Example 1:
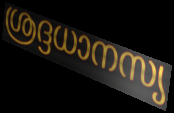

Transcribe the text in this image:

ശ്രദ്ദധാനസ്യ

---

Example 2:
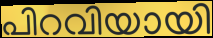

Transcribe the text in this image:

പിറവിയായി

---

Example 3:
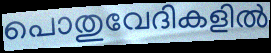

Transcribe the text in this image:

പൊതുവേദികളിൽ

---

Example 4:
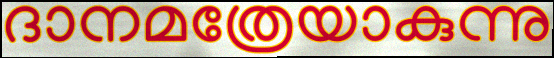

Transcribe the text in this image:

ദാനമത്രേയാകുന്നു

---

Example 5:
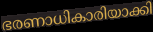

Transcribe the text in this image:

ഭരണാധികാരിയാക്കി